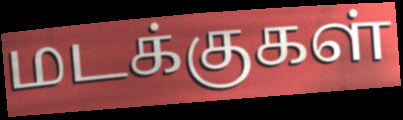
மடக்குகள்